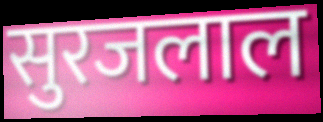
सुरजलाल